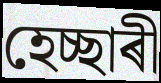
হেচ্ছাৰী